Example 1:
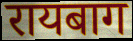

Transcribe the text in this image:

रायबाग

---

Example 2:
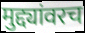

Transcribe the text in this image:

मुद्द्यांवरच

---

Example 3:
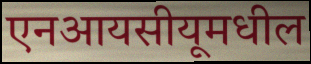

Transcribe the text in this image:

एनआयसीयूमधील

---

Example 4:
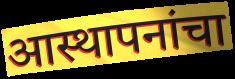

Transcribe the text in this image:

आस्थापनांचा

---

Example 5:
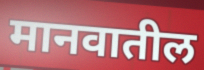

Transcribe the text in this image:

मानवातील